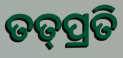
ତତ୍‌ପ୍ରତି